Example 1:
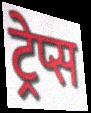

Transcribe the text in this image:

ट्रेप्स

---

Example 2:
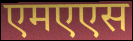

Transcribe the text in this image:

एमएएस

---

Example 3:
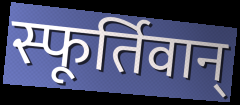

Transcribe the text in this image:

स्फूर्तिवान्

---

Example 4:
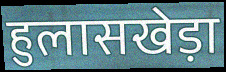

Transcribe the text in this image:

हुलासखेड़ा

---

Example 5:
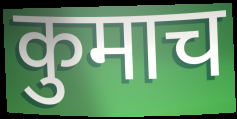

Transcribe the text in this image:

कुमाच